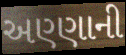
અણ્ણાની